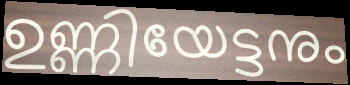
ഉണ്ണിയേട്ടനും